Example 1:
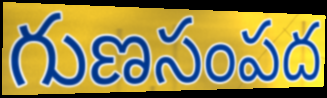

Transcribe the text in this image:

గుణసంపద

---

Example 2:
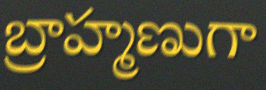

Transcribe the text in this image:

బ్రాహ్మణుగా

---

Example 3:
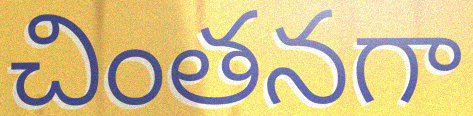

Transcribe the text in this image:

చింతనగా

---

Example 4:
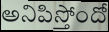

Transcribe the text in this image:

అనిపిస్తోందో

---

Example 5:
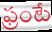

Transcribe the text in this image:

ఫ్రంటే